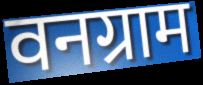
वनग्राम